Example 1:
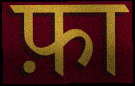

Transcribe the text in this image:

फ़ा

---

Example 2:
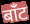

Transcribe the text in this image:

बांँट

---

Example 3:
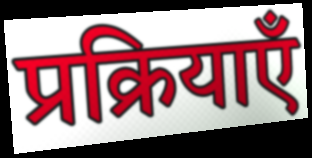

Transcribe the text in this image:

प्रक्रियाएँ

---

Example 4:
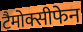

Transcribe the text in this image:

टैमोक्सीफेन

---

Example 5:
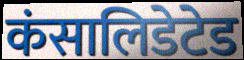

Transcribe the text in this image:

कंसालिडेटेड